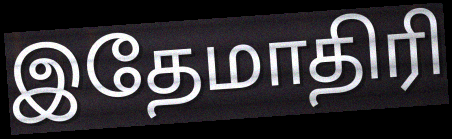
இதேமாதிரி